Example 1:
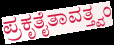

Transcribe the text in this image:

ಪ್ರಕೃತೈತಾವತ್ತ್ವಂ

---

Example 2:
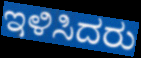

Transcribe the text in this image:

ಇಳಿಸಿದರು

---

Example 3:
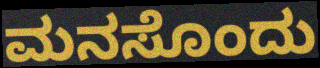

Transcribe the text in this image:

ಮನಸೊಂದು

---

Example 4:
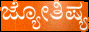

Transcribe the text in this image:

ಜ್ಯೋತಿಷ್ಯ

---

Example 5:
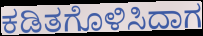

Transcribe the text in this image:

ಕಡಿತಗೊಳಿಸಿದಾಗ